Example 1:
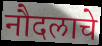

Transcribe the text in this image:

नौदलाचे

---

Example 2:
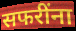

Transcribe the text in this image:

सफरींना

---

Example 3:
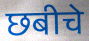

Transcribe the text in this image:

छबीचे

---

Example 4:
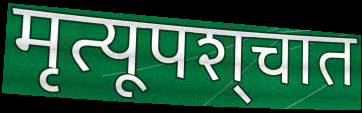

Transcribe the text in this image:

मृत्यूपश्चात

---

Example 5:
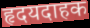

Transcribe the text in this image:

हृदयदाहक